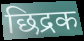
छिद्रक